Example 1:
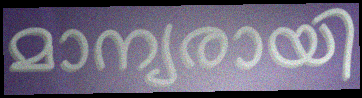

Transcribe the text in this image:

മാന്യരായി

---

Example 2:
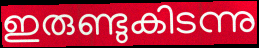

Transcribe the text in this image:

ഇരുണ്ടുകിടന്നു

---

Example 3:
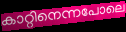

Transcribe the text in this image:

കാറ്റിനെന്നപോലെ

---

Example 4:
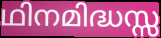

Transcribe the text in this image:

ഥിനമിദ്ധസ്സ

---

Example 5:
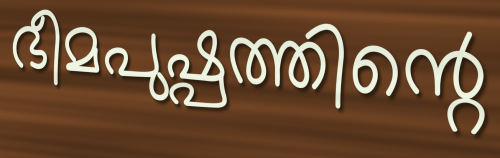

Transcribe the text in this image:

ഭീമപുഷ്പത്തിന്റെ